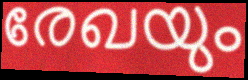
രേഖയും